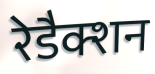
रेडैक्शन